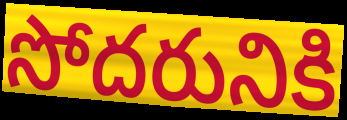
సోదరునికి